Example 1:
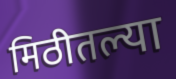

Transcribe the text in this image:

मिठीतल्या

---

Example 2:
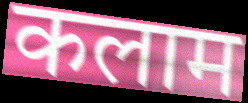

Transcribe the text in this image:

कलाम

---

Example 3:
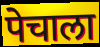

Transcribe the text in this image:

पेचाला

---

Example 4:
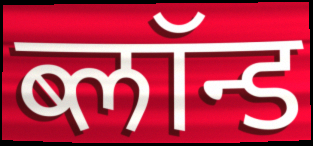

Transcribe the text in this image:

ब्लॉन्ड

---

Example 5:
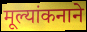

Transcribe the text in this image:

मूल्यांकनाने